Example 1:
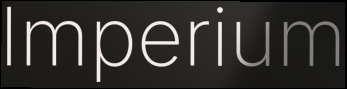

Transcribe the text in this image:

Imperium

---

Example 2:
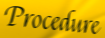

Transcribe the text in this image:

Procedure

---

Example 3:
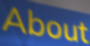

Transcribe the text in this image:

About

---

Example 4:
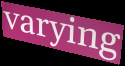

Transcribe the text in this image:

varying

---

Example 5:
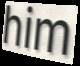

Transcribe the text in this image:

him